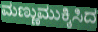
ಮಣ್ಣುಮುಕ್ಕಿಸಿದ